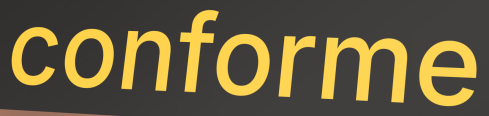
conforme